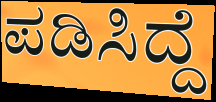
ಪಡಿಸಿದ್ದೆ